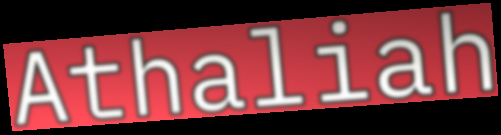
Athaliah